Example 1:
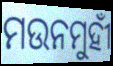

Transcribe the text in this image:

ମଉନମୁହୀଁ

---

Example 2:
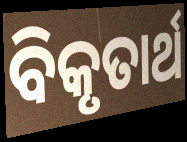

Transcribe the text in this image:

ବିକୃତାର୍ଥ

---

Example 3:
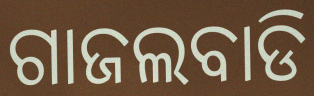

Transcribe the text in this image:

ଗାଜଲବାଡି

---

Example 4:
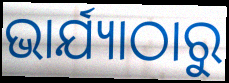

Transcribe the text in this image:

ଭାର୍ଯ୍ୟାଠାରୁ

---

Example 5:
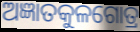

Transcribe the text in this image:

ଅଜ୍ଞାତକୁଳଗୋତ୍ର